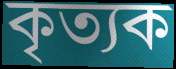
কৃত্যক